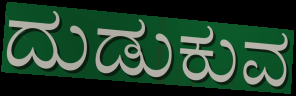
ದುಡುಕುವ